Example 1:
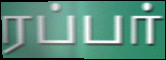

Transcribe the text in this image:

ரப்பர்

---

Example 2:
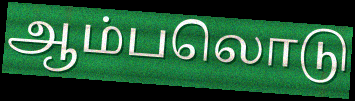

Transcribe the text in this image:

ஆம்பலொடு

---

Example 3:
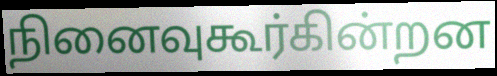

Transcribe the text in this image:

நினைவுகூர்கின்றன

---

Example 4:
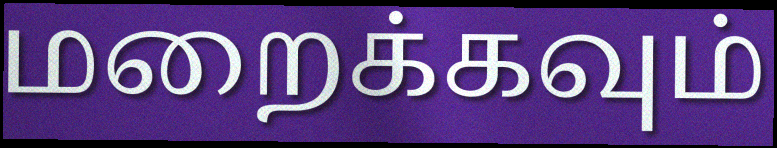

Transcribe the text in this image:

மறைக்கவும்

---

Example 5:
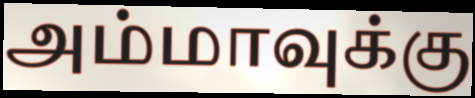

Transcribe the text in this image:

அம்மாவுக்கு